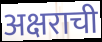
अक्षराची